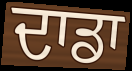
ਦਾਡਾ